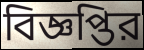
বিজ্ঞপ্তির